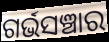
ଗର୍ଭସଞ୍ଚାର